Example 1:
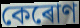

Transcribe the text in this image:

কেৰোণ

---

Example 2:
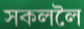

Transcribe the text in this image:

সকললৈ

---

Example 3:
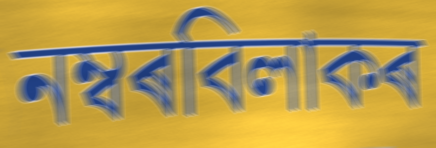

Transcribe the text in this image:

নম্বৰবিলাকৰ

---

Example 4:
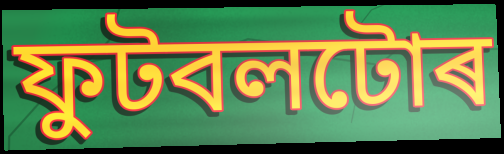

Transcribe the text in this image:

ফুটবলটোৰ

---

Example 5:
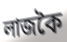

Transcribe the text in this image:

লাজকৈ